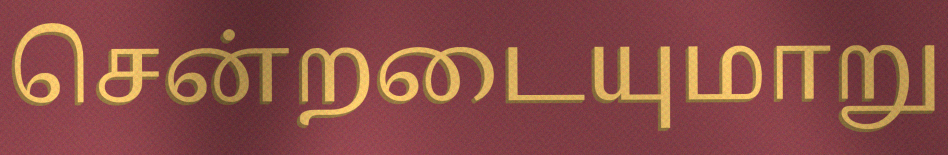
சென்றடையுமாறு